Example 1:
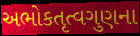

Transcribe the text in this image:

અભોકતૃત્વગુણના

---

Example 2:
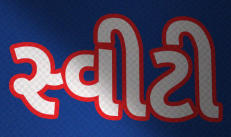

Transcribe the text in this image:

સ્વીટી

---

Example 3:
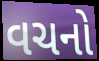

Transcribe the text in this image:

વચનો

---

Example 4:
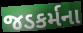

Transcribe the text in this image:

જડકર્મના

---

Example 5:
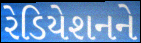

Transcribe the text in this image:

રેડિયેશનને